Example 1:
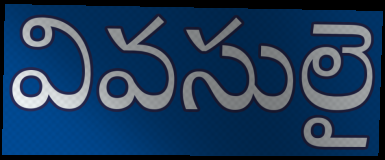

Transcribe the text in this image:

వివసులై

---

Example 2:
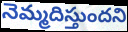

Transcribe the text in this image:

నెమ్మదిస్తుందని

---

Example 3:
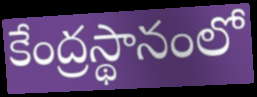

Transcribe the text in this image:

కేంద్రస్థానంలో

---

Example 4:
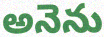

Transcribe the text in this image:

అనెను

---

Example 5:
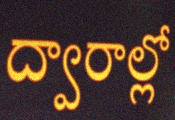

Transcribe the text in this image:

ద్వారాల్లో